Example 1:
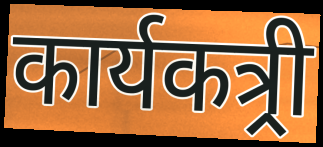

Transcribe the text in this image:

कार्यकत्र्री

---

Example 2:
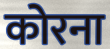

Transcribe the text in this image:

कोरना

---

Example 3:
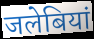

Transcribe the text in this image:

जलेबियां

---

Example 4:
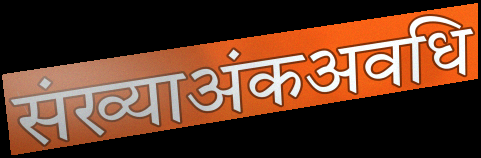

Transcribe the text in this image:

संख्याअंकअवधि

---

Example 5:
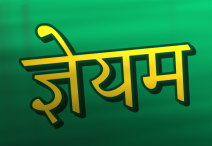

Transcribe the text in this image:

ज्ञेयम